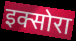
इक्सोरा